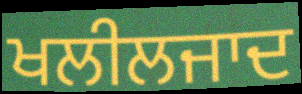
ਖਲੀਲਜਾਦ